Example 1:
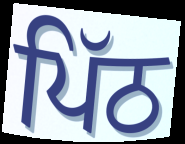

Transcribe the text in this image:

ਪਿੱਠ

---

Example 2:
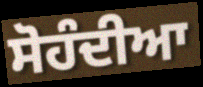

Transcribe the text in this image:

ਸੋਹੰਦੀਆ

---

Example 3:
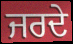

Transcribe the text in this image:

ਜਰਦੇ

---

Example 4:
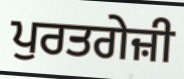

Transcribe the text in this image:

ਪੁਰਤਗੇਜ਼ੀ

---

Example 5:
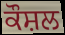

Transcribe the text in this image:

ਕੌਸ਼ਲ